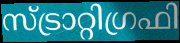
സ്ട്രാറ്റിഗ്രഫി